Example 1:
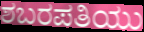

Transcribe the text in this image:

ಶಬರಪತಿಯು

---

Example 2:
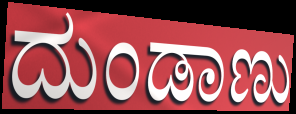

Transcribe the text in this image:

ದುಂಡಾಣು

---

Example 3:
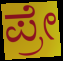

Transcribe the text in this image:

ಪ್ರೇ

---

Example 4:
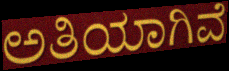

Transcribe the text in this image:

ಅತಿಯಾಗಿವೆ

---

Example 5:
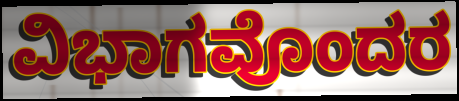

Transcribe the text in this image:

ವಿಭಾಗವೊಂದರ